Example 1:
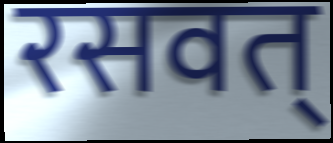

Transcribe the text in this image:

रसवत्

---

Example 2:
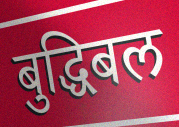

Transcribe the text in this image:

बुद्धिबल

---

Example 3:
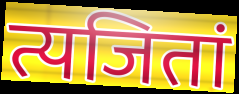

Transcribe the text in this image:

त्यजितां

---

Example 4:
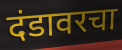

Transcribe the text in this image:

दंडावरचा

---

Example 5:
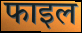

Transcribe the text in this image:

फाइल